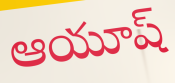
ఆయూష్